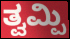
ತ್ವಮ್ಪಿ